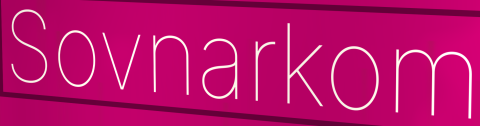
Sovnarkom